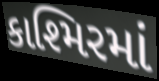
કાશ્મિરમાં